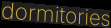
dormitories